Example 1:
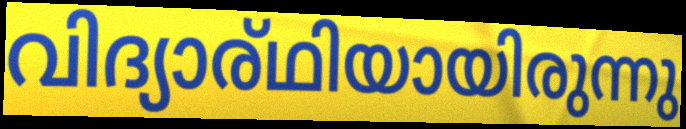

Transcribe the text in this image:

വിദ്യാര്ഥിയായിരുന്നു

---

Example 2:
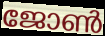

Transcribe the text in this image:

ജോൺ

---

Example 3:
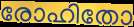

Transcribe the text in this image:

രോഹിതോ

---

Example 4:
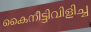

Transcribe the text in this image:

കൈനീട്ടിവിളിച്ച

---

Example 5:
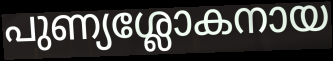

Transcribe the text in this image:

പുണ്യശ്ലോകനായ